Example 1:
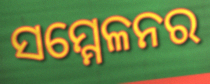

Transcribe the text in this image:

ସମ୍ମେଳନର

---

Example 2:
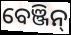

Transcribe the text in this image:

ବେଞ୍ଜିନ୍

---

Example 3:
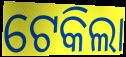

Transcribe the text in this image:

ଟେକିଲା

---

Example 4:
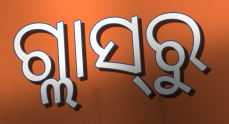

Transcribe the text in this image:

ଗ୍ଲାସ୍‍ରୁ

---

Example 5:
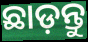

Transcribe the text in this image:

ଛାଡ଼ନ୍ତୁ